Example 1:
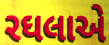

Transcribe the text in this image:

રઘલાએ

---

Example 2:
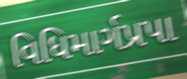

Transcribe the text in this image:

વિધિમાર્ગપ્રપા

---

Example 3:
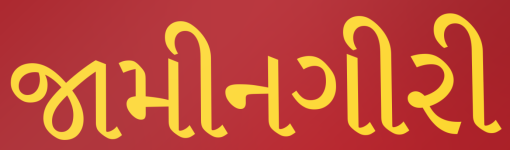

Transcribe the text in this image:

જામીનગીરી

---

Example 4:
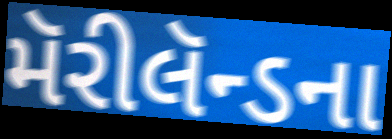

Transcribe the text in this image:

મૅરીલૅન્ડના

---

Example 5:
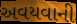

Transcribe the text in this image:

અવયવાની